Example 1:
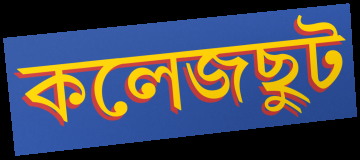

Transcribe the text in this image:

কলেজছুট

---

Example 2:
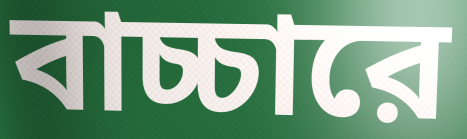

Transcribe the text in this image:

বাচ্চারে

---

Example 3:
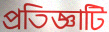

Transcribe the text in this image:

প্রতিজ্ঞাটি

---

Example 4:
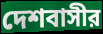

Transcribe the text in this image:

দেশবাসীর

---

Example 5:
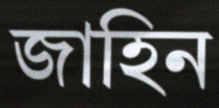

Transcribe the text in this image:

জাহিন